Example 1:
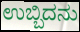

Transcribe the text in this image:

ಉಬ್ಬಿದನು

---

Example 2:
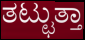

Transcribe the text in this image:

ತಟ್ಟುತ್ತಾ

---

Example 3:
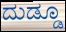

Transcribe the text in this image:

ದುಡ್ಡೂ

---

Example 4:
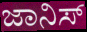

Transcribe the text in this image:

ಜಾನಿಸ್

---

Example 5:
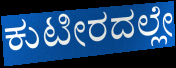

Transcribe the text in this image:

ಕುಟೀರದಲ್ಲೇ